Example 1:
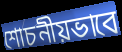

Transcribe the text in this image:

শোচনীয়ভাবে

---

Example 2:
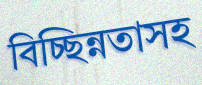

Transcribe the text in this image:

বিচ্ছিন্নতাসহ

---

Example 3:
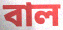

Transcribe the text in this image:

বাল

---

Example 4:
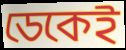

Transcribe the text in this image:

ডেকেই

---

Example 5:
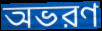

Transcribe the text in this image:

অভরণ